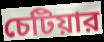
চেটিয়ার